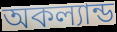
অকল্যান্ড